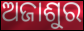
ଅଜାଶୁର